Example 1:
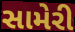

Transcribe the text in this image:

સામેરી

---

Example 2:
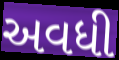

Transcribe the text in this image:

અવધી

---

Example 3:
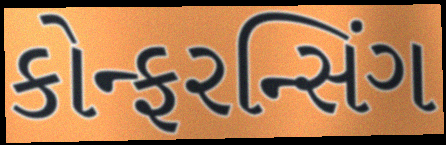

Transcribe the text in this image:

કોન્ફરન્સિંગ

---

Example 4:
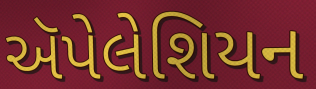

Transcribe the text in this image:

ઍપેલેશિયન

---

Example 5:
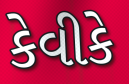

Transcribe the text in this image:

કેવીકે